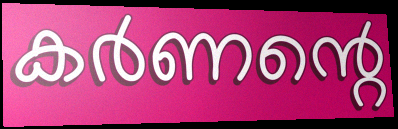
കർണന്റെ